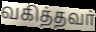
வகித்தவர்